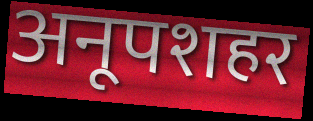
अनूपशहर